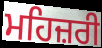
ਮਹਿਜ਼ਰੀ